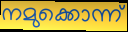
നമുക്കൊന്ന്